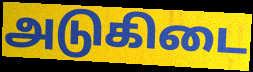
அடுகிடை